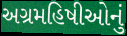
અગ્રમહિષીઓનું